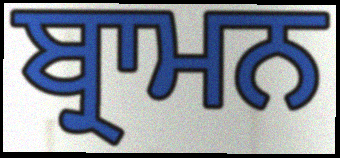
ਬ੍ਰਾਮਨ